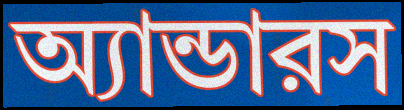
অ্যান্ডারস